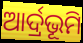
ଆର୍ଦ୍ରଭୂମି